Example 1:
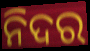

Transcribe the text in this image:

ନିଦର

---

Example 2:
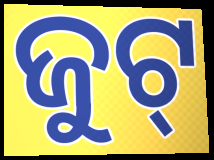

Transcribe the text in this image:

ଜୁଟ୍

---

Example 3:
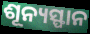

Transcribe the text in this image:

ଶୂନ୍ୟସ୍ଫାନ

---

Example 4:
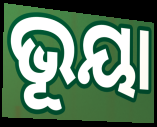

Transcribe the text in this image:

ଭୂୟା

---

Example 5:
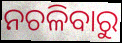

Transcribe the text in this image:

ନଚଳିବାରୁ